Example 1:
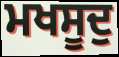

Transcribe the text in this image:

ਮਖਸੂਦੁ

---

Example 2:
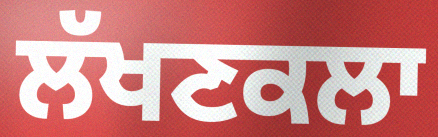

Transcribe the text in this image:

ਲੱਖਣਕਲਾ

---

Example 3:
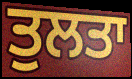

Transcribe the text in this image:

ਤੁਲਤਾ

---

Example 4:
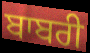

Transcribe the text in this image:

ਬਾਬਰੀ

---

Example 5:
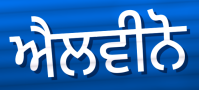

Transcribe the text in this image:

ਐਲਵੀਨੋ